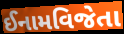
ઈનામવિજેતા